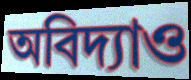
অবিদ্যাও